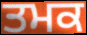
ਤਮਕ